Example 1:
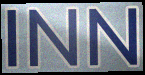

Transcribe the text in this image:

INN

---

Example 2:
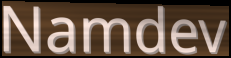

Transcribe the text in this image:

Namdev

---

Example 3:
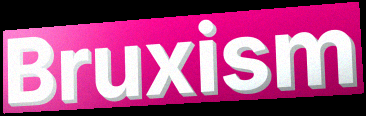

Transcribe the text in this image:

Bruxism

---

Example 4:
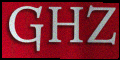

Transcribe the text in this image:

GHZ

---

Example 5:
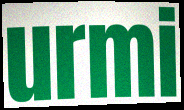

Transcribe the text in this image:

urmi